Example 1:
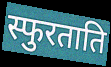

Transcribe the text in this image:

स्फुरताति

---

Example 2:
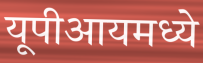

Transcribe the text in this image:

यूपीआयमध्ये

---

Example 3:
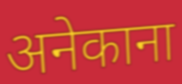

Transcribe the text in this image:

अनेकाना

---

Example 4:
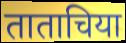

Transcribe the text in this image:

ताताचिया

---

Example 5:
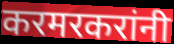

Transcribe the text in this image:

करमरकरांनी